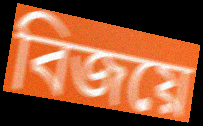
বিজয়ে